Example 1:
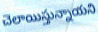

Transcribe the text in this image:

చెలాయిస్తున్నాయని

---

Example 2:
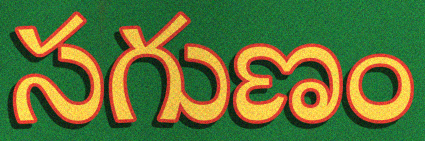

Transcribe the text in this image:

సగుణం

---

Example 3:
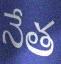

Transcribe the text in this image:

నేత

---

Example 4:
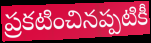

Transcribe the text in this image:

ప్రకటించినప్పటికీ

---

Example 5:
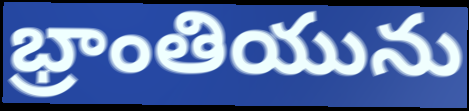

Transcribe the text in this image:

భ్రాంతియును